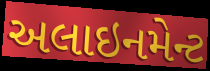
અલાઇનમેન્ટ